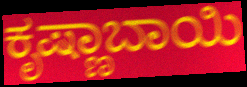
ಕೃಷ್ಣಾಬಾಯಿ